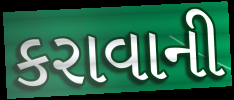
કરાવાની